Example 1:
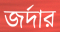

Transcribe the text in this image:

জর্দার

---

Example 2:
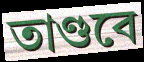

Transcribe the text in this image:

তাণ্ডবে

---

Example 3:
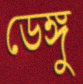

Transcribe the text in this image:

ডেঙ্গু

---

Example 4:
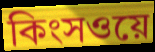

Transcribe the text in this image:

কিংসওয়ে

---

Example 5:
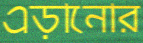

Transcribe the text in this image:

এড়ানোর